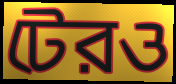
টেরও